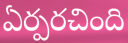
ఏర్పరచింది